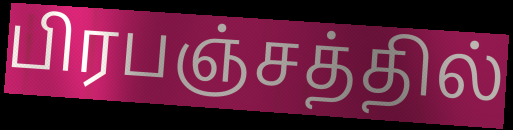
பிரபஞ்சத்தில்